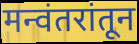
मन्वंतरांतून